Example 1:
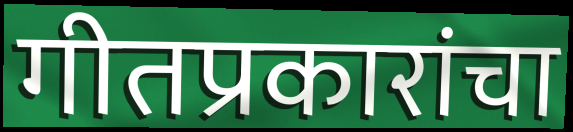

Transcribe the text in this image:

गीतप्रकारांचा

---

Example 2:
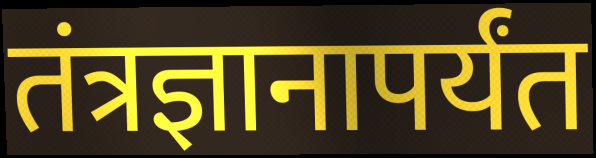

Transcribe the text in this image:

तंत्रज्ञानापर्यंत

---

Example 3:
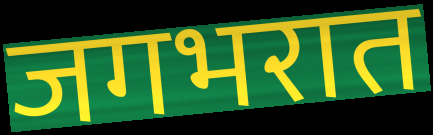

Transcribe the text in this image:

जगभरात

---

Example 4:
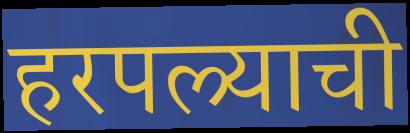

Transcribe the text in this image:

हरपल्याची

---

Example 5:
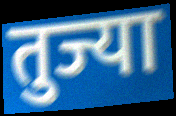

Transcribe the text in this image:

तुज्या